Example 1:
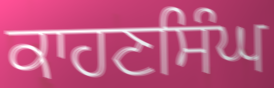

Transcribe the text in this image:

ਕਾਹਣਸਿੰਘ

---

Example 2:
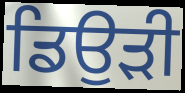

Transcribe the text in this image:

ਡਿਉੜੀ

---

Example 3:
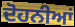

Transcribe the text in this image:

ਦੋਹਨੀਆਂ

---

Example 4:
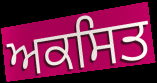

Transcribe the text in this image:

ਅਕਸਿਤ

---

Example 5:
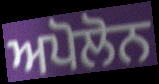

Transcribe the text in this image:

ਅਪੋਲੋਨ